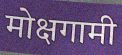
मोक्षगामी